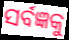
ସର୍ବଜ୍ଞକୁ